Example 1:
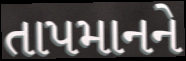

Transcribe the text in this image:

તાપમાનને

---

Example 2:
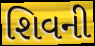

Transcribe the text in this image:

શિવની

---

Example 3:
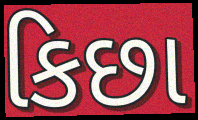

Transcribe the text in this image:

કિછા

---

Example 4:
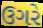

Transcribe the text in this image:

ઉગરે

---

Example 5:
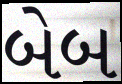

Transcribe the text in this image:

બેબ